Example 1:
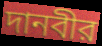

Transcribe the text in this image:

দানবীর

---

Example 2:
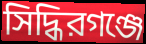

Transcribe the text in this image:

সিদ্ধিরগঞ্জে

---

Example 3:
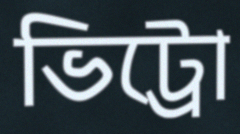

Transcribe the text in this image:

ভিট্রো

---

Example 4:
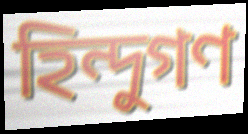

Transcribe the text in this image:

হিন্দুগণ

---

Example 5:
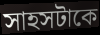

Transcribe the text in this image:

সাহসটাকে